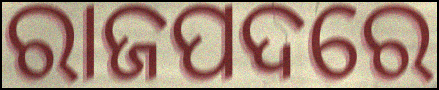
ରାଜପଦରେ